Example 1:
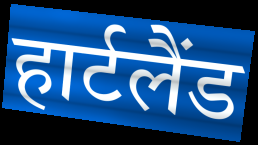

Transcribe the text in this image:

हार्टलैंड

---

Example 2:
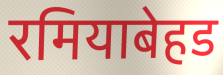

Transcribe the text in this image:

रमियाबेहड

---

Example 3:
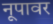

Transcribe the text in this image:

नूपावर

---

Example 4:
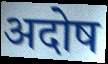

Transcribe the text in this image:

अदोष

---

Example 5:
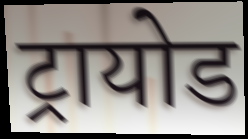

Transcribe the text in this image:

ट्रायोड